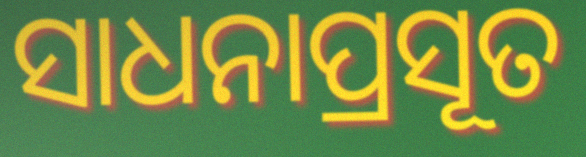
ସାଧନାପ୍ରସୂତ